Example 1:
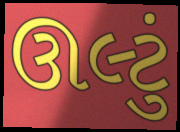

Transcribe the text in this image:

ઊલ્ટું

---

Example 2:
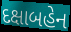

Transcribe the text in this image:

દક્ષાબહેન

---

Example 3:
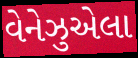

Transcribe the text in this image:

વેનેઝુએલા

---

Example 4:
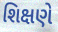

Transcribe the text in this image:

શિક્ષણે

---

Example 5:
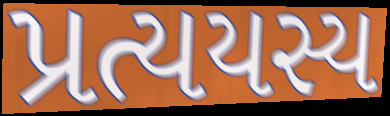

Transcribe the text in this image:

પ્રત્યયસ્ય